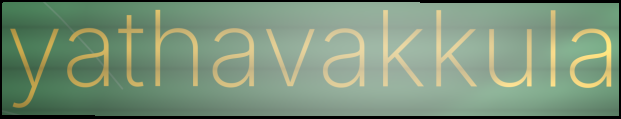
yathavakkula